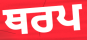
ਥਰਪ